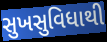
સુખસુવિધાથી